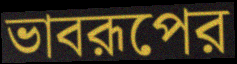
ভাবরূপের